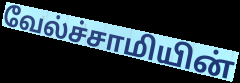
வேல்ச்சாமியின்